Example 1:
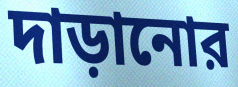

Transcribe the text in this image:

দাড়ানোর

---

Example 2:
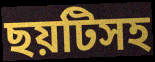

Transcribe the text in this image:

ছয়টিসহ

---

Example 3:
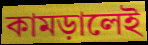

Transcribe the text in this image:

কামড়ালেই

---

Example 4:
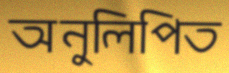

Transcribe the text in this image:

অনুলিপিত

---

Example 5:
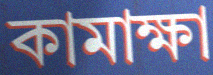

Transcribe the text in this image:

কামাক্ষা